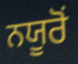
ਨਯੂਰੋਂ